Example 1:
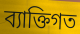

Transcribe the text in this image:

ব্যাক্তিগত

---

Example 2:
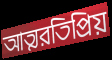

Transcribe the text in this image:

আত্মরতিপ্রিয়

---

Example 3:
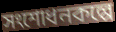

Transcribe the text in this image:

সংশোধনকল্পে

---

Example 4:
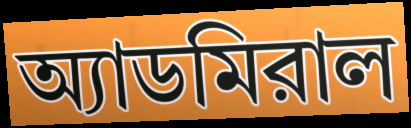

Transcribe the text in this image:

অ্যাডমিরাল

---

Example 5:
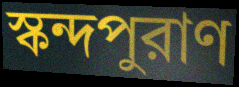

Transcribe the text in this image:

স্কন্দপুরাণ